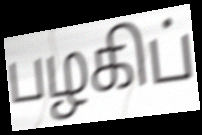
பழகிப்